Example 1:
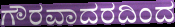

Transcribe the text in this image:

ಗೌರವಾದರದಿಂದ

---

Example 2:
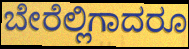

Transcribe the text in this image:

ಬೇರೆಲ್ಲಿಗಾದರೂ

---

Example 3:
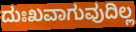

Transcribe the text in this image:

ದುಃಖವಾಗುವುದಿಲ್ಲ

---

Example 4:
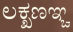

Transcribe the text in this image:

ಲಕ್ಖಣಞ್ಚ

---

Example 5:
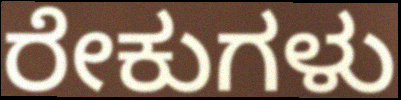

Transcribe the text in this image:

ರೇಕುಗಳು